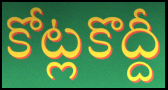
కోట్లకొద్దీ